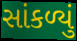
સાંકળ્યું